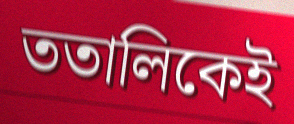
ততালিকেই